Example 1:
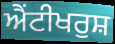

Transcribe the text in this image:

ਐਂਟੀਖਰੁਸ਼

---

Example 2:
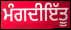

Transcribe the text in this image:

ਮੰਗਦੀਇੱਤੂ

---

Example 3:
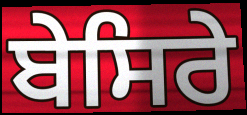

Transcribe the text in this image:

ਬੇਸਿਰੇ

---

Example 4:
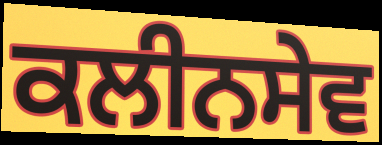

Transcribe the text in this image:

ਕਲੀਨਸੇਵ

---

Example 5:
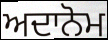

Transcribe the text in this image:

ਅਦਾਨੋਮ